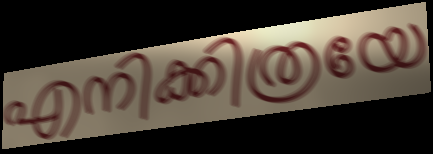
എനിക്കിത്രയേ